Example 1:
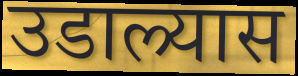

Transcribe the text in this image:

उडाल्यास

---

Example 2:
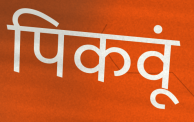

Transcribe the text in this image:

पिकवूं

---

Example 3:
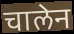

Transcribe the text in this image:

चालेन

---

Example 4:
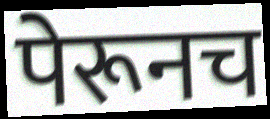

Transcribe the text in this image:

पेरूनच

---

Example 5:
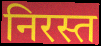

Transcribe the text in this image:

निरस्त